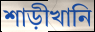
শাড়ীখানি